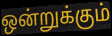
ஒன்றுக்கும்